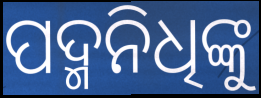
ପଦ୍ମନିଧିଙ୍କୁ